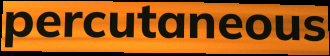
percutaneous